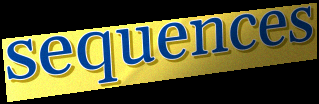
sequences